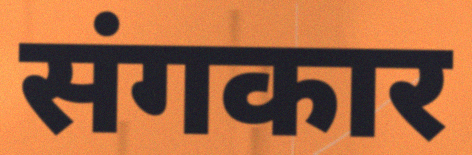
संगकार